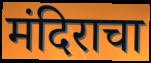
मंदिराचा